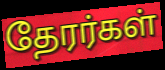
தேரர்கள்